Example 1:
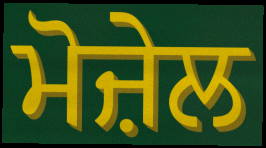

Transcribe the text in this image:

ਮੋਜ਼ੇਲ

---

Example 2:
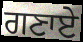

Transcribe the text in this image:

ਗਣਾਏ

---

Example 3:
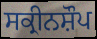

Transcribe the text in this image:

ਸਕ੍ਰੀਨਸ਼ੌਪ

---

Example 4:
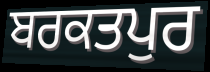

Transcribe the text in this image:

ਬਰਕਤਪੁਰ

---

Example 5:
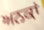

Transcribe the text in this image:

ਅਨਕਾਂ